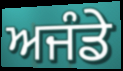
ਅਜੰਡੇ